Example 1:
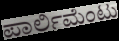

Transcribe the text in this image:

ಪಾರ್ಲಿಮೆಂಟು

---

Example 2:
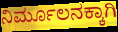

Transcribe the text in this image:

ನಿರ್ಮೂಲನಕ್ಕಾಗಿ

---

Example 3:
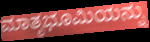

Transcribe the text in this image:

ಮಾತೃಭೂಮಿಯನ್ನು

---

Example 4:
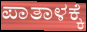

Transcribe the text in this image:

ಪಾತಾಳಕ್ಕೆ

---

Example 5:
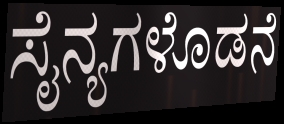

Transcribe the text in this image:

ಸೈನ್ಯಗಳೊಡನೆ